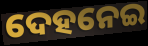
ଦେହନେଇ